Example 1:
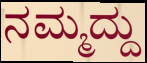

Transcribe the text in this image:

ನಮ್ಮದ್ದು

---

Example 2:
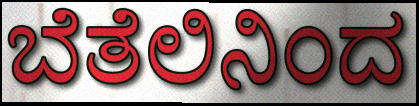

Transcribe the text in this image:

ಬೆತೆಲಿನಿಂದ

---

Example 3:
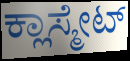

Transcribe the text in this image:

ಕ್ಲಾಸ್ಮೇಟ್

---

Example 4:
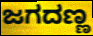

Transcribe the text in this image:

ಜಗದಣ್ಣ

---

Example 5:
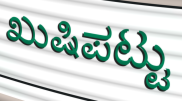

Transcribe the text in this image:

ಖುಷಿಪಟ್ಟು